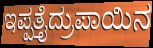
ಇಪ್ಪತ್ತೈದ್ರುಪಾಯಿನ